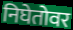
निघेतोवर